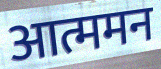
आत्ममन